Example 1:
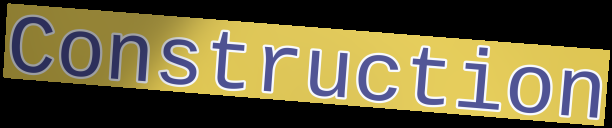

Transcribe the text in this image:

Construction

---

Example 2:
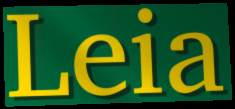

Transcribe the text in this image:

Leia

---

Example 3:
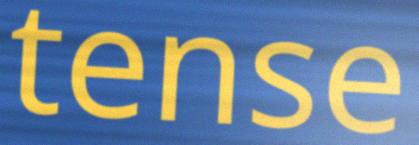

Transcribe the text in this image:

tense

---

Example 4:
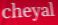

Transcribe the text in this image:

cheyal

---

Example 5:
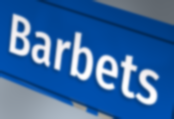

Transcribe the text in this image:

Barbets